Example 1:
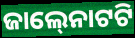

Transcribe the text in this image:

ଜାଲ୍‍ନୋଟଟି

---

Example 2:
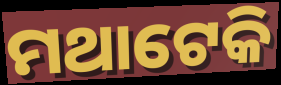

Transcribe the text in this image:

ମଥାଟେକି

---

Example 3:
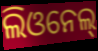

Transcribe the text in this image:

ଲିଓନେଲ୍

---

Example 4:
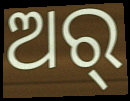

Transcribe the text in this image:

ଅର୍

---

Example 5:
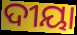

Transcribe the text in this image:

ଦୀୟା